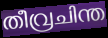
തീവ്രചിന്ത